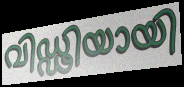
വിഡ്ഢിയായി